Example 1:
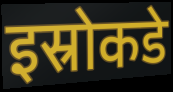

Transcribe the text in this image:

इस्रोकडे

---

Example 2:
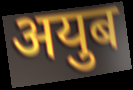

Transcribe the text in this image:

अयुब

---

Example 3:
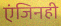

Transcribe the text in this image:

एंजिनही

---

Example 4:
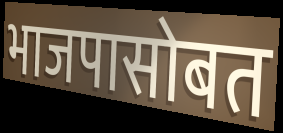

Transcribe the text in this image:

भाजपासोबत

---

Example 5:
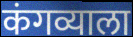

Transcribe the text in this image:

कंगव्याला